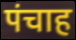
पंचाह